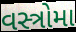
વસ્ત્રોમા